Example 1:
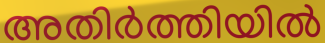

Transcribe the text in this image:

അതിർത്തിയിൽ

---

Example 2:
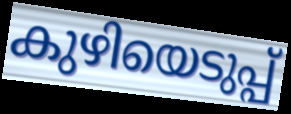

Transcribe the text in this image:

കുഴിയെടുപ്പ്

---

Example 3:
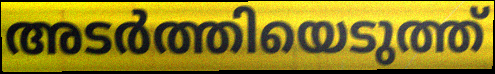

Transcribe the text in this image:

അടർത്തിയെടുത്ത്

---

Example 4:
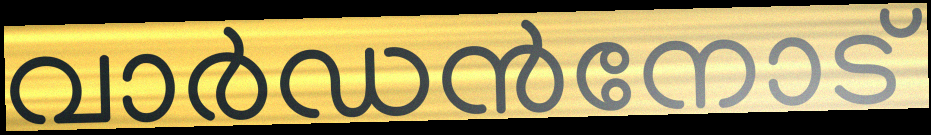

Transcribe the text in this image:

വാർഡൻനോട്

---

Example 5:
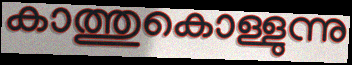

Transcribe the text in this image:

കാത്തുകൊള്ളുന്നു